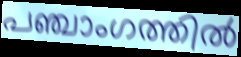
പഞ്ചാംഗത്തിൽ